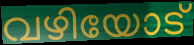
വഴിയോട്